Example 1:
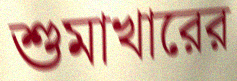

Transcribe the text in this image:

শুমাখারের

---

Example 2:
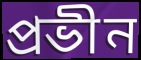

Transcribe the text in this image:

প্রভীন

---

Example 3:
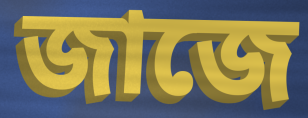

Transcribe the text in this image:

জাজে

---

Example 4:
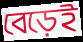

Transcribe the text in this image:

বেড়েই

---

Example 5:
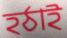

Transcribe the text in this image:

হঠাই